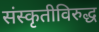
संस्कृतीविरुद्ध